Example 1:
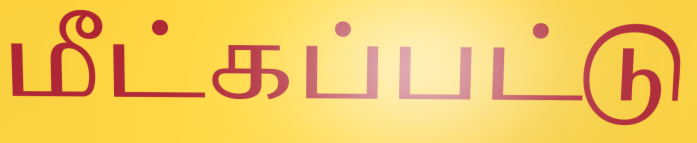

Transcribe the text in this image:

மீட்கப்பட்டு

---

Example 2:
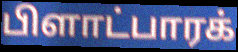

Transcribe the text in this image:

பிளாட்பாரக்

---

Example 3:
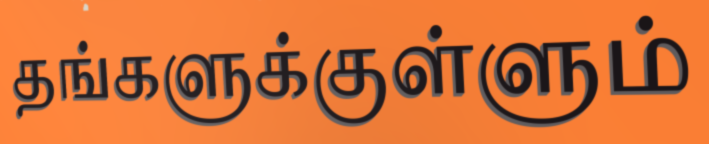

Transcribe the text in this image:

தங்களுக்குள்ளும்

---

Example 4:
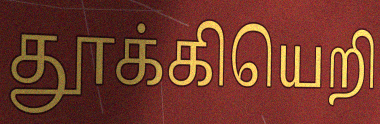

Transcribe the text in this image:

தூக்கியெறி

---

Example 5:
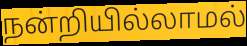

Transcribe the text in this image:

நன்றியில்லாமல்